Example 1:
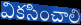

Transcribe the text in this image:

వికసించాలి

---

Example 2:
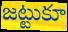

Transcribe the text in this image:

జట్టుకూ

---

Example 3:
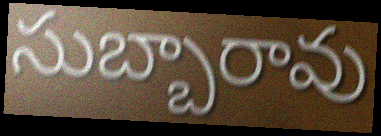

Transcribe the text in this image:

సుబ్బారావు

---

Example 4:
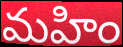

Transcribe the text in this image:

మహిం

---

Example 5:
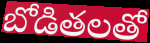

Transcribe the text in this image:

బోడితలతో